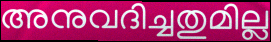
അനുവദിച്ചതുമില്ല